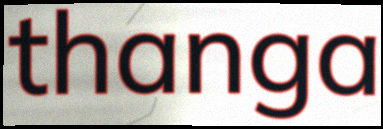
thanga